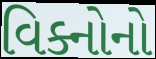
વિક્નોનો